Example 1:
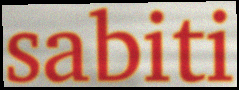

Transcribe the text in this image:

sabiti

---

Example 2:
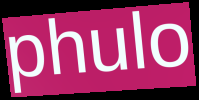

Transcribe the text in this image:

phulo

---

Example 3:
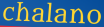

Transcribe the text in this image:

chalano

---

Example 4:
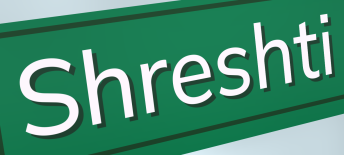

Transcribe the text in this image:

Shreshti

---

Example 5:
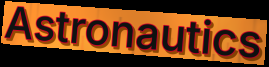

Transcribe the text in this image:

Astronautics